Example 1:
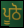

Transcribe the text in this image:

ਪੂਠੋ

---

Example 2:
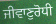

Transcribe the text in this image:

ਜੀਵਾਣੁਰੋਧੀ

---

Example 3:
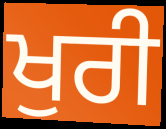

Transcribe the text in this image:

ਖੁਰੀ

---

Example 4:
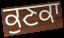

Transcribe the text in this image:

ਕੁਣਕਾ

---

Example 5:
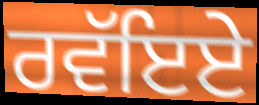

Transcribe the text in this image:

ਰਵੱਇਏ